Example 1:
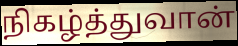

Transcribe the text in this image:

நிகழ்த்துவான்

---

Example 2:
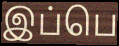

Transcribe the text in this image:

இப்பெ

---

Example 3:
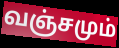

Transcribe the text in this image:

வஞ்சமும்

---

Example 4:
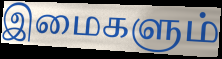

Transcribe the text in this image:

இமைகளும்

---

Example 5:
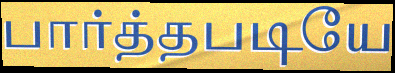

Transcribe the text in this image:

பார்த்தபடியே